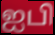
ஐபி